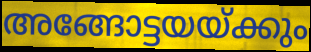
അങ്ങോട്ടയയ്ക്കും